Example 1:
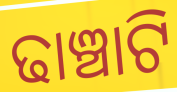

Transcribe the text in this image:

ଢାଞ୍ଚାଟି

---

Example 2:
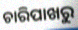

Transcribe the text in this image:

ଚାରିପାଖରୁ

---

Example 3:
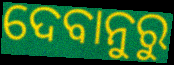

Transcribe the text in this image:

ଦେବାନୁରୁ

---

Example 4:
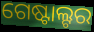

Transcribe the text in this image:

ଗେଷ୍ଟାଲ୍ଟର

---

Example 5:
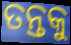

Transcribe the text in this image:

ତନ୍ତକୁ